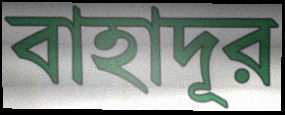
বাহাদূর